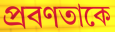
প্রবণতাকে